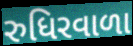
રુધિરવાળા